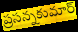
ప్రసన్నకుమార్